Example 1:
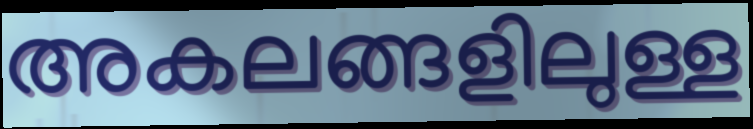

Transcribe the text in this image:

അകലങ്ങളിലുള്ള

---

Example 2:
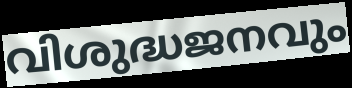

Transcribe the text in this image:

വിശുദ്ധജനവും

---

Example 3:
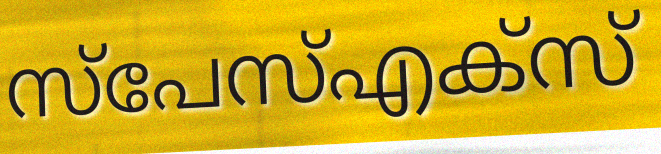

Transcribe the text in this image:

സ്പേസ്എക്സ്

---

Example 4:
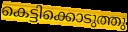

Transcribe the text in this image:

കെട്ടിക്കൊടുത്തു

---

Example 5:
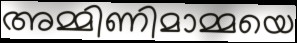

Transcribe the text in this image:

അമ്മിണിമാമ്മയെ